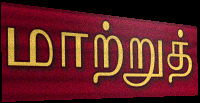
மாற்றுத்